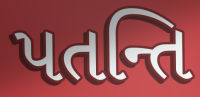
પતન્તિ